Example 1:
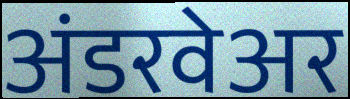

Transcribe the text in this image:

अंडरवेअर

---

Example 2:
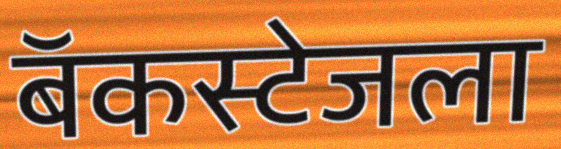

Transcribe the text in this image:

बॅकस्टेजला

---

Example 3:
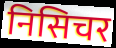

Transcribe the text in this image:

निसिचर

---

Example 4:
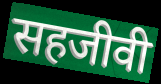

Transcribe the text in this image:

सहजीवी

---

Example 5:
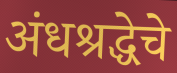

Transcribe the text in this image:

अंधश्रद्धेचे